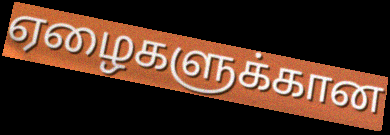
ஏழைகளுக்கான